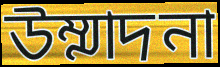
উম্মাদনা